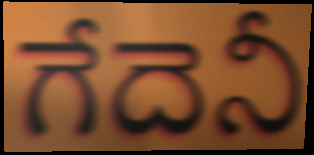
గేదెనీ